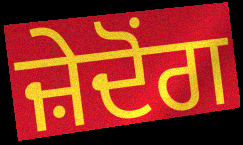
ਜ਼ੇਦੋਂਗ